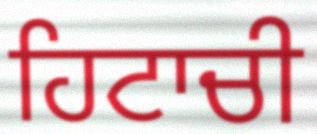
ਹਿਟਾਚੀ